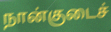
நான்குடைச்